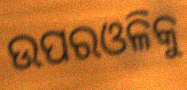
ଉପରଓଳିକୁ